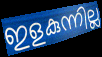
ഇളകുന്നില്ല